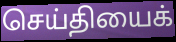
செய்தியைக்